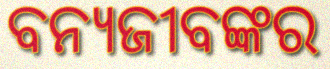
ବନ୍ୟଜୀବଙ୍କର